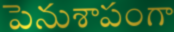
పెనుశాపంగా